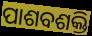
ପାଶବଶକ୍ତି